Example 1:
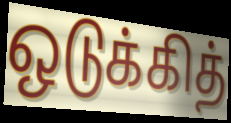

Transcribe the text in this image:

ஒடுக்கித்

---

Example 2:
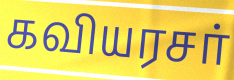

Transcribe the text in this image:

கவியரசர்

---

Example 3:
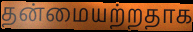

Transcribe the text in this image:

தன்மையற்றதாக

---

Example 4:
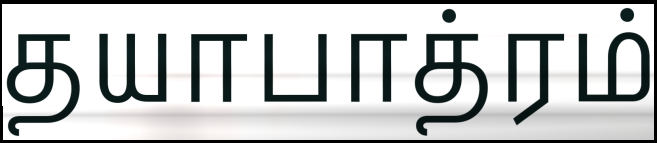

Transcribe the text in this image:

தயாபாத்ரம்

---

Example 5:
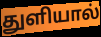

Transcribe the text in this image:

துளியால்